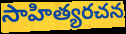
సాహిత్యరచన